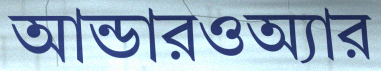
আন্ডারওঅ্যার